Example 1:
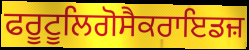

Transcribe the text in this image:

ਫਰੂਟੂਲਿਗੋਸੈਕਰਾਇਡਜ਼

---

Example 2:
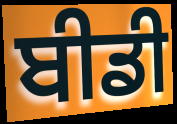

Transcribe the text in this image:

ਬੀਡੀ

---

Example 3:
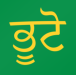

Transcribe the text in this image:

ਭੂਟੋ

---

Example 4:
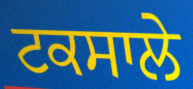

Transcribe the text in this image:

ਟਕਸਾਲੇ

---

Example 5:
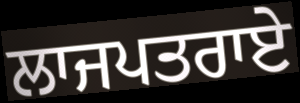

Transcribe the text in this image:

ਲਾਜਪਤਰਾਏ